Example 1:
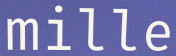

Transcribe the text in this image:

mille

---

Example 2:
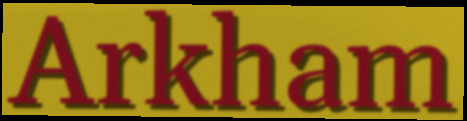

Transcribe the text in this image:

Arkham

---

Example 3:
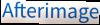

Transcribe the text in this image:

Afterimage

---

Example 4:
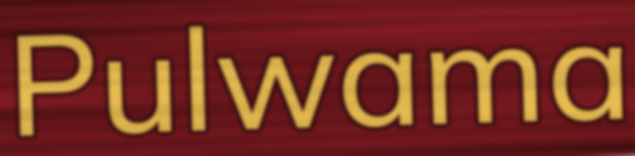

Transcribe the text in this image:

Pulwama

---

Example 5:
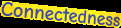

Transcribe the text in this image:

Connectedness